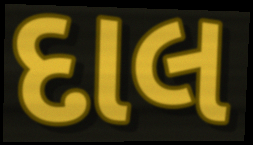
દાલ